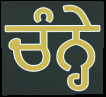
ਚੰਨ੍ਹੇ